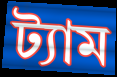
ট্যাম